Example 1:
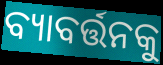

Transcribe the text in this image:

ବ୍ୟାବର୍ତ୍ତନକୁ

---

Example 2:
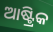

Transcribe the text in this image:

ଆଷ୍ଟ୍ରିକ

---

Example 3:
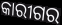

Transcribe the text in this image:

କାରୀଗର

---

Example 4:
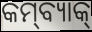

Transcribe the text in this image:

କମ୍‌ବ୍ୟାକ୍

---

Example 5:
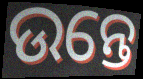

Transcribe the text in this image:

ଉନ୍ତେ